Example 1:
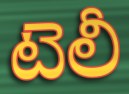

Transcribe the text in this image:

టెలీ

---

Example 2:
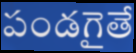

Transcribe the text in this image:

పండగైతే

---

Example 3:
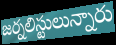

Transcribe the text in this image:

జర్నలిస్టులున్నారు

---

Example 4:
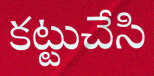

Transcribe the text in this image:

కట్టుచేసి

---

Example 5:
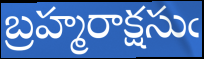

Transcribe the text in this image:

బ్రహ్మరాక్షసుఁ